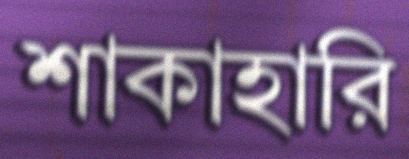
শাকাহারি